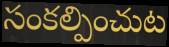
సంకల్పించుట